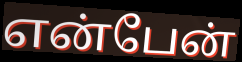
என்பேன்